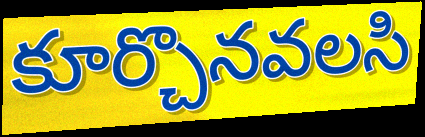
కూర్చొనవలసి